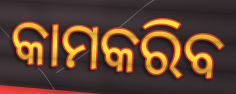
କାମକରିବ